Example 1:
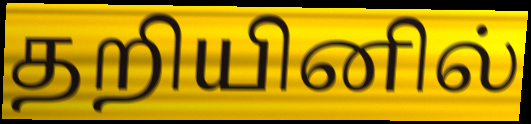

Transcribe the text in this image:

தறியினில்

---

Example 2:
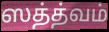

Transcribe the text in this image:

ஸத்த்வம்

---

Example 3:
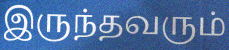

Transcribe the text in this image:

இருந்தவரும்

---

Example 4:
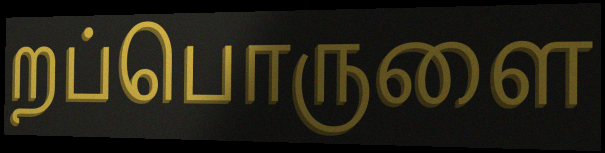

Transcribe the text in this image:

றப்பொருளை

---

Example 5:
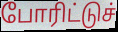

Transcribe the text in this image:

போரிட்டுச்